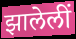
झालेलीं